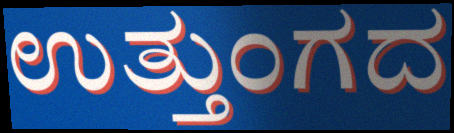
ಉತ್ತುಂಗದ